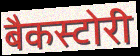
बैकस्टोरी